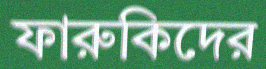
ফারুকিদের